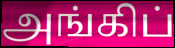
அங்கிப்